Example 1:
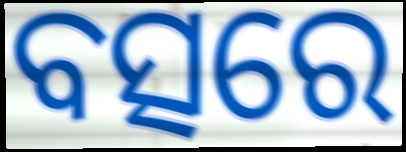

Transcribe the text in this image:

ବତ୍ସରେ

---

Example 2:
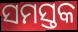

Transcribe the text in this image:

ସମସ୍ତକ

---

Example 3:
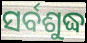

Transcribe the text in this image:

ସର୍ବଶୁଦ୍ଧ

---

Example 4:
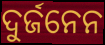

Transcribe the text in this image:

ଦୁର୍ଜନେନ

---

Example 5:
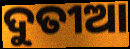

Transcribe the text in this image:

ଦୁତୀଆ